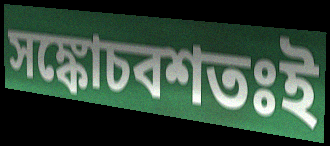
সঙ্কোচবশতঃই